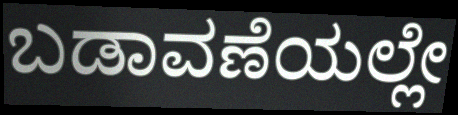
ಬಡಾವಣೆಯಲ್ಲೇ